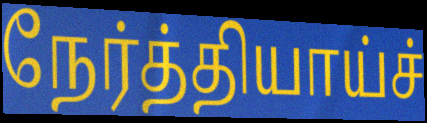
நேர்த்தியாய்ச்